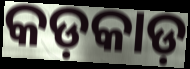
କଡ଼କାଡ଼